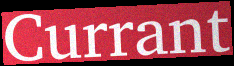
Currant